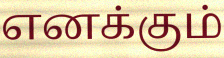
எனக்கும்